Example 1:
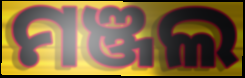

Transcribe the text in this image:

ମଞ୍ଜଲ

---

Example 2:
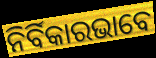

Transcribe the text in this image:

ନିର୍ବିକାରଭାବେ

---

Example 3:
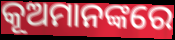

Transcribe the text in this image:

କୂଅମାନଙ୍କରେ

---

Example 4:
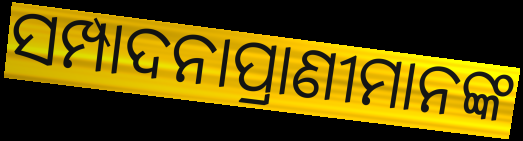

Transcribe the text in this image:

ସମ୍ପାଦନାପ୍ରାଣୀମାନଙ୍କ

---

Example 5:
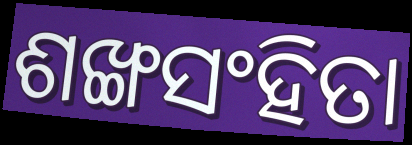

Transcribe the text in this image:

ଶଙ୍ଖସଂହିତା